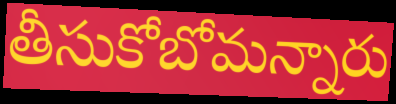
తీసుకోబోమన్నారు